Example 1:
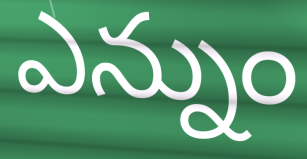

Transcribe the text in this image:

ఎన్నుం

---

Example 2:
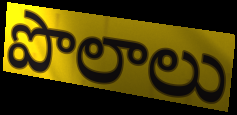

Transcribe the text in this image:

పొలాలు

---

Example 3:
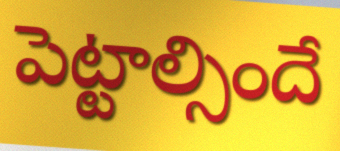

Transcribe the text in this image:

పెట్టాల్సిందే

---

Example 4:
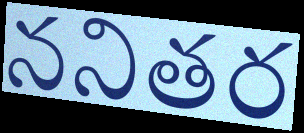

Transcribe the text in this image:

ననితర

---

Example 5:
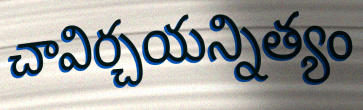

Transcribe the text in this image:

చావిర్చయన్నిత్యం